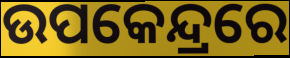
ଉପକେନ୍ଦ୍ରରେ